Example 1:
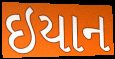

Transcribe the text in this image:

ઇયાન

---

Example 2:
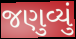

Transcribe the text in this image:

જણુવ્યું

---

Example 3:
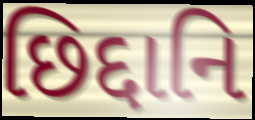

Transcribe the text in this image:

છિદ્દાનિ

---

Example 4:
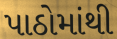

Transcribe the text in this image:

પાઠોમાંથી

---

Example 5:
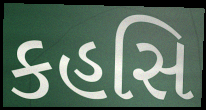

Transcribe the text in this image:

કહસિ